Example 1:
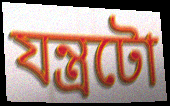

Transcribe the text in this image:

যন্ত্ৰটো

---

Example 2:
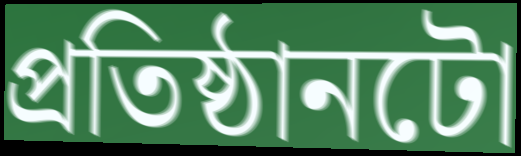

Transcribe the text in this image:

প্ৰতিষ্ঠানটো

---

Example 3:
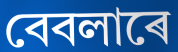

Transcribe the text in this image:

বেবলাৰে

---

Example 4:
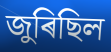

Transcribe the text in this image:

জুৰিছিল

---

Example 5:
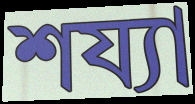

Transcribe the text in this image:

শয্যা